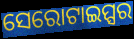
ସେରୋଟାଇପ୍ସର